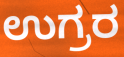
ಉಗ್ರರ